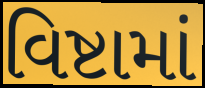
વિષ્ટામાં